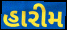
હારીમ